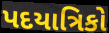
પદયાત્રિકો